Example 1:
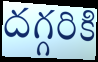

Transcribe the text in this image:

దగ్గరికి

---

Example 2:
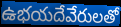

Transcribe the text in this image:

ఉభయదేవేరులతో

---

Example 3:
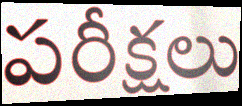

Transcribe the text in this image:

పరీక్షలు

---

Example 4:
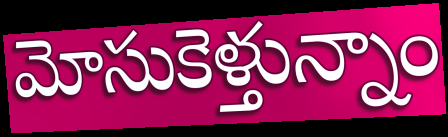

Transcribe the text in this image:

మోసుకెళ్తున్నాం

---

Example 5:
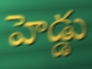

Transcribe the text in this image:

హెడ్డు